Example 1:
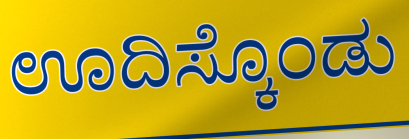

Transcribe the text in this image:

ಊದಿಸ್ಕೊಂಡು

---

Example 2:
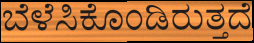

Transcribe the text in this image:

ಬೆಳೆಸಿಕೊಂಡಿರುತ್ತದೆ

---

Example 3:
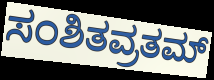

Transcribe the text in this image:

ಸಂಶಿತವ್ರತಮ್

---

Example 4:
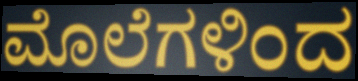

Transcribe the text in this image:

ಮೊಲೆಗಳಿಂದ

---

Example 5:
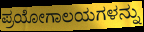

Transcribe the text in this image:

ಪ್ರಯೋಗಾಲಯಗಳನ್ನು